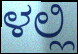
ಳಲ್ಲಿ